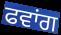
ਫਵਾਂਗ